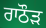
ਰਾਠੌੜ